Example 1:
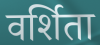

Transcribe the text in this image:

वर्शिता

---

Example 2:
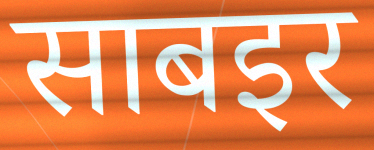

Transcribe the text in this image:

साबइर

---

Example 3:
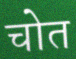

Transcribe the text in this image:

चोत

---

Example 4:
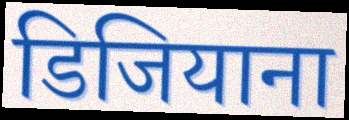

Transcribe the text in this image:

डिजियाना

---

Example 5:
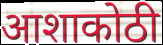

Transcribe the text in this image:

आशाकोठी